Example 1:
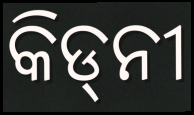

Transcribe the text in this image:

କିଡ୍‍ନୀ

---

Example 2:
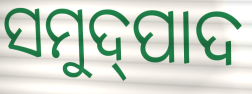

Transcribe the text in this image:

ସମୁଦ୍‌ପାଦ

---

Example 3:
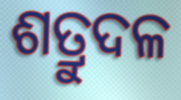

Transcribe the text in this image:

ଶତ୍ରୁଦଳ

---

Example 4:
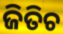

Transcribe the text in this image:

ଜିତିଚ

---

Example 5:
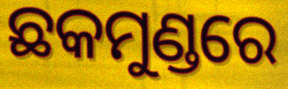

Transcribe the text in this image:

ଛକମୁଣ୍ଡରେ